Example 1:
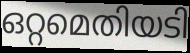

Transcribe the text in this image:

ഒറ്റമെതിയടി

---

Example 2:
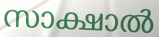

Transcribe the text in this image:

സാക്ഷാൽ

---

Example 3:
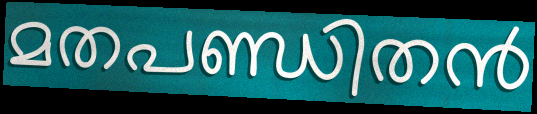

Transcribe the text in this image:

മതപണ്ഡിതൻ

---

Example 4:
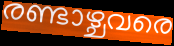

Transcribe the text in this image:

രണ്ടാഴ്ചവരെ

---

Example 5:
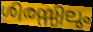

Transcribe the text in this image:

ശിരസ്സിലും